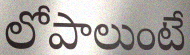
లోపాలుంటే